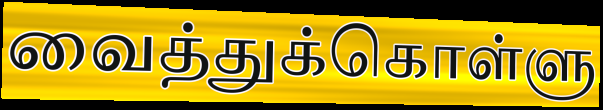
வைத்துக்கொள்ளு